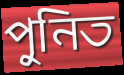
পুনিত